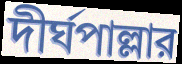
দীর্ঘপাল্লার